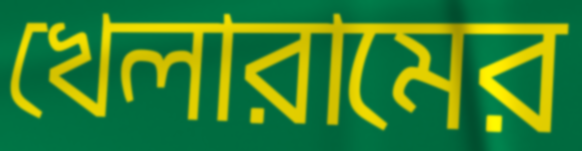
খেলারামের